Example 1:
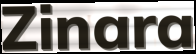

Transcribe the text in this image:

Zinara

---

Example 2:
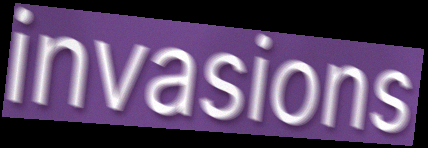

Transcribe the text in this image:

invasions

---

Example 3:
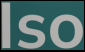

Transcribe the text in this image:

Iso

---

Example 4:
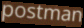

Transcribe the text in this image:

postman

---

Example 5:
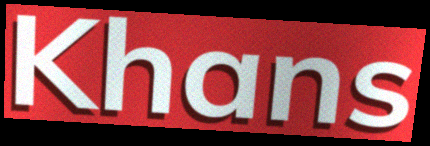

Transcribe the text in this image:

Khans